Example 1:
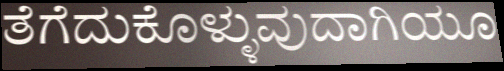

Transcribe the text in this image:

ತೆಗೆದುಕೊಳ್ಳುವುದಾಗಿಯೂ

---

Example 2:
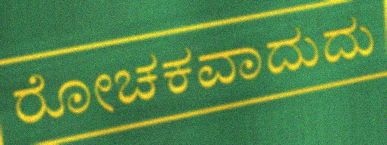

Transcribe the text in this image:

ರೋಚಕವಾದುದು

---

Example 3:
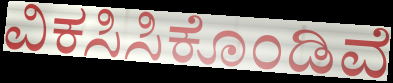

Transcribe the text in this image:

ವಿಕಸಿಸಿಕೊಂಡಿವೆ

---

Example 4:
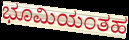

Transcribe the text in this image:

ಭೂಮಿಯಂತಹ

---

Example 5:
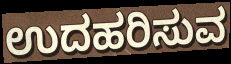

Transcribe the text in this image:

ಉದಹರಿಸುವ